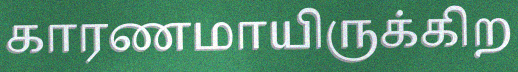
காரணமாயிருக்கிற